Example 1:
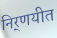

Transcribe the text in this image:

निर्णयीत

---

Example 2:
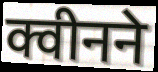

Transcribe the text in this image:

क्वीनने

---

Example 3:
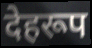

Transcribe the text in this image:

देहरूप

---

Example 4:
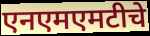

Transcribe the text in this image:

एनएमएमटीचे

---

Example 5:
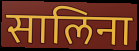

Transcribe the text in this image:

सालिना